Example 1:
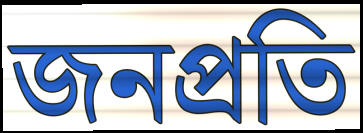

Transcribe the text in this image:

জনপ্রতি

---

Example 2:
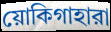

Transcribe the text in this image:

য়োকিগাহারা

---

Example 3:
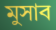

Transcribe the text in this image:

মুসাব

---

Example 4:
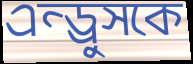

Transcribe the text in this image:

এন্ড্রুসকে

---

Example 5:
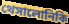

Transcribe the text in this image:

থেসালোনিকি